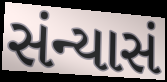
સંન્યાસં